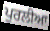
ਪੁਰਲੀਆ